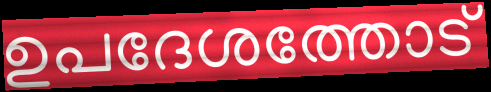
ഉപദേശത്തോട്